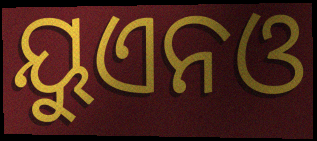
ୟୁଏନଓ